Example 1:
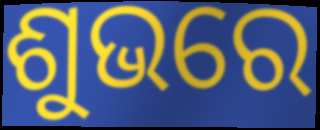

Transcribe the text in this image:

ଶୁଭରେ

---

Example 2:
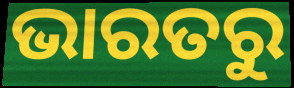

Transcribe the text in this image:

ଭାରତରୁ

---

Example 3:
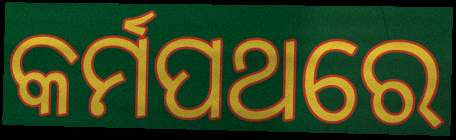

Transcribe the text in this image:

କର୍ମପଥରେ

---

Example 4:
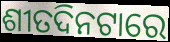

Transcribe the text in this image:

ଶୀତଦିନଟାରେ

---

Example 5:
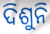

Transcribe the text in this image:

ଦିଶୁନି